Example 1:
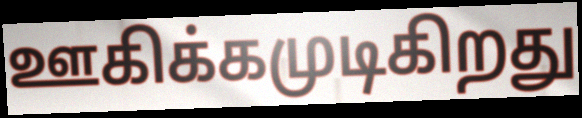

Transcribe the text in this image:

ஊகிக்கமுடிகிறது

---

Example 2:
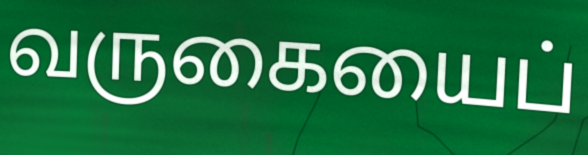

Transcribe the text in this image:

வருகையைப்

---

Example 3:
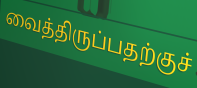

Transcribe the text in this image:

வைத்திருப்பதற்குச்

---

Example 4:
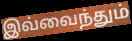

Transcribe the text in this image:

இவ்வைந்தும்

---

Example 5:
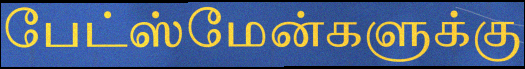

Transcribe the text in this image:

பேட்ஸ்மேன்களுக்கு